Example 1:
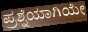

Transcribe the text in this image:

ಪ್ರಶ್ನೆಯಾಗಿಯೇ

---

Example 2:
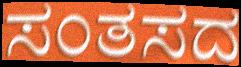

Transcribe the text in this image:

ಸಂತಸದ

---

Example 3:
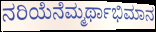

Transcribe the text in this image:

ನರಿಯೆನೆಮ್ಮರ್ಥಾಭಿಮಾನ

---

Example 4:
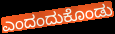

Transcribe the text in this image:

ಎಂದಂದುಕೊಂಡು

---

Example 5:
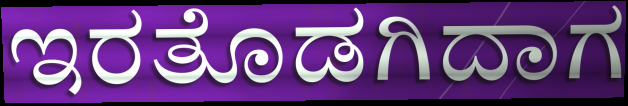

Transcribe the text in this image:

ಇರತೊಡಗಿದಾಗ